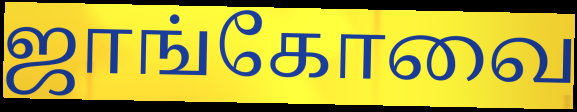
ஜாங்கோவை